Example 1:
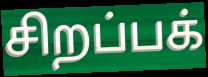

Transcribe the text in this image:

சிறப்பக்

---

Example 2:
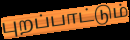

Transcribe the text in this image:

புறப்பாட்டும்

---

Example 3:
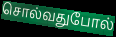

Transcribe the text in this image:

சொல்வதுபோல்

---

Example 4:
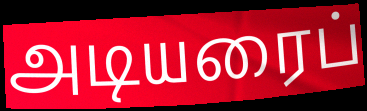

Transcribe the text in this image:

அடியரைப்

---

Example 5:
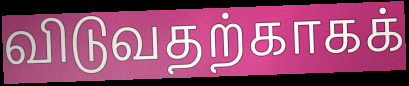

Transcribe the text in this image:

விடுவதற்காகக்